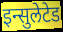
इन्सुलेटेड